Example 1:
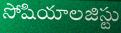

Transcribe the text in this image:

సోషియాలజిస్టు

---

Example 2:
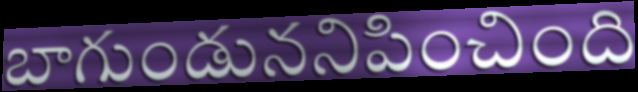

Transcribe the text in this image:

బాగుండుననిపించింది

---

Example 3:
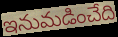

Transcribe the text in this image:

ఇనుమడించేది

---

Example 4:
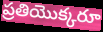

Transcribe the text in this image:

ప్రతియొక్కరూ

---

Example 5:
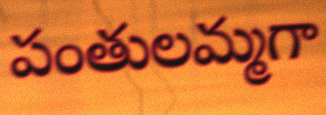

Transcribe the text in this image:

పంతులమ్మగా